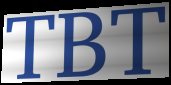
TBT